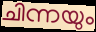
ചിന്നയും